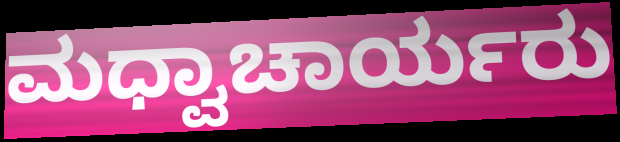
ಮಧ್ವಾಚಾರ್ಯರು